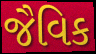
જૈવિક